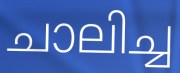
ചാലിച്ച